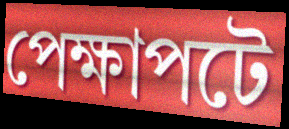
পেক্ষাপটে